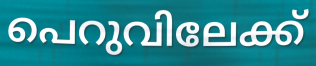
പെറുവിലേക്ക്